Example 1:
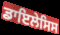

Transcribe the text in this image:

ਡਾਇਲੇਸਿਸ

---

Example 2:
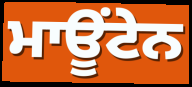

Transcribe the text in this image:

ਮਾਊਂਟੇਨ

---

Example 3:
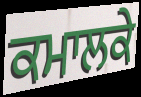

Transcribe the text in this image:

ਕਮਾਲਕੇ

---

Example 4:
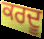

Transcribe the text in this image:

ਕਰਦੂ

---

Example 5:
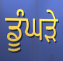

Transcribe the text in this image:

ਡੂੰਘੜੇ